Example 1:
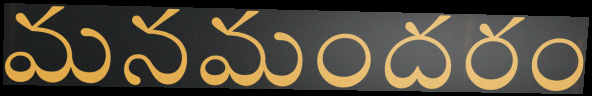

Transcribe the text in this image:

మనమందరం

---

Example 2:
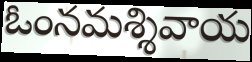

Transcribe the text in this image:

ఓంనమశ్శివాయ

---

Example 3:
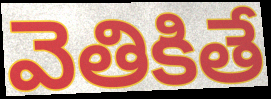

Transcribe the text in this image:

వెతికితే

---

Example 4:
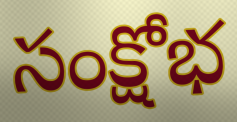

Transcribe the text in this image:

సంక్షోభ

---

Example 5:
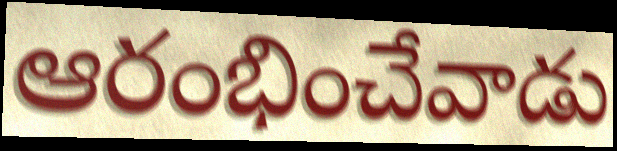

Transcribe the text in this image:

ఆరంభించేవాడు